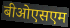
बीओएसएम